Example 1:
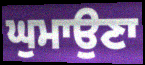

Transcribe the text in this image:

ਘੁਮਾਉਣਾ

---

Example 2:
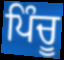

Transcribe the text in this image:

ਪਿੰਚੂ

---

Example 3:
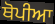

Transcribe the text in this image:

ਥੋਪੀਆ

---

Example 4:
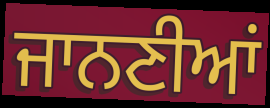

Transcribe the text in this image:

ਜਾਨਣੀਆਂ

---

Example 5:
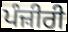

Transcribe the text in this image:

ਪੰਜ਼ੀਰੀ